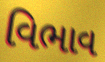
વિભાવ